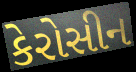
કેરોસીન